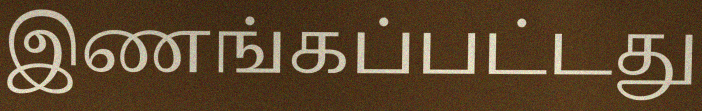
இணங்கப்பட்டது